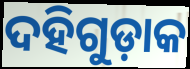
ଦହିଗୁଡ଼ାକ